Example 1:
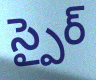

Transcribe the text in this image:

స్పైర్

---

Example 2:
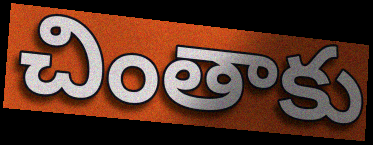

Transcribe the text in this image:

చింతాకు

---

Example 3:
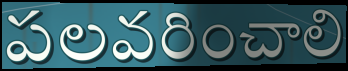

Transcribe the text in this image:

పలవరించాలి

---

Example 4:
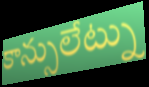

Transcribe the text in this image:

కాన్సులేట్ను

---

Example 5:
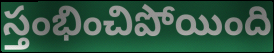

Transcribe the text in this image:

స్తంభించిపోయింది